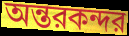
অন্তরকন্দর